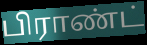
பிராண்ட்